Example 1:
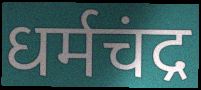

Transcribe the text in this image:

धर्मचंद्र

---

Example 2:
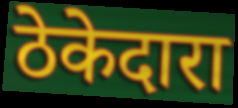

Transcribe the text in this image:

ठेकेदारा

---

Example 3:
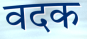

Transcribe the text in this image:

वदक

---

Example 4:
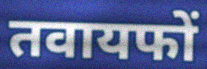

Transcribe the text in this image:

तवायफों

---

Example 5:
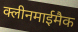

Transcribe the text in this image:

क्लीनमाईमैक